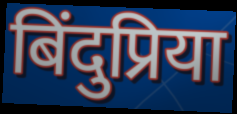
बिंदुप्रिया